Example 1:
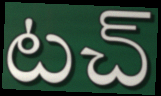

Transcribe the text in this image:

టచ్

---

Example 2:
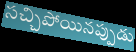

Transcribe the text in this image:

సచ్చిపోయినప్పుడు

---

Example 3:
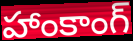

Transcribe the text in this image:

హాంకాంగ్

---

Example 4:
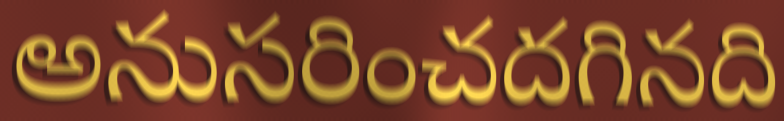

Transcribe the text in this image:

అనుసరించదగినది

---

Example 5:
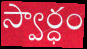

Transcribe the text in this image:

స్వార్ధం